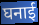
घनाई